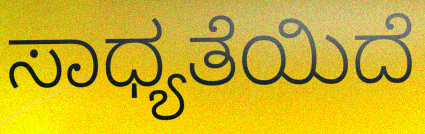
ಸಾಧ್ಯತೆಯಿದೆ